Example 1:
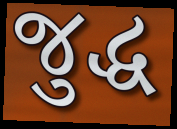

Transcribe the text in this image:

જુદ્ધ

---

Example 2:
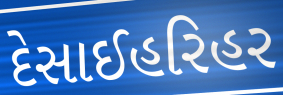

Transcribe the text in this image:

દેસાઈહરિહર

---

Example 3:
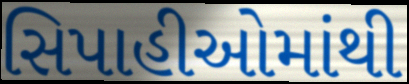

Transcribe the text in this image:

સિપાહીઓમાંથી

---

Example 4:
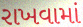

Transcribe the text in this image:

રાખવામાં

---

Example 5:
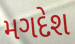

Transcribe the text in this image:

મગદેશ